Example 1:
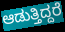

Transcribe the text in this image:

ಆಡುತ್ತಿದ್ದರೆ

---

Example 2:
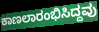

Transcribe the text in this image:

ಕಾಣಲಾರಂಭಿಸಿದ್ದವು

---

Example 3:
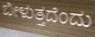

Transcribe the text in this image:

ಬೀಳುತ್ತದೆಂದು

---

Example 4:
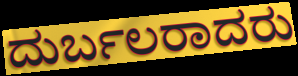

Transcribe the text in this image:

ದುರ್ಬಲರಾದರು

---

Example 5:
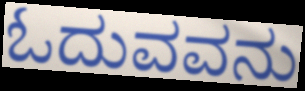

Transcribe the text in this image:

ಓದುವವನು